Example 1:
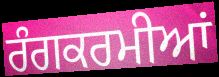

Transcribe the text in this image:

ਰੰਗਕਰਮੀਆਂ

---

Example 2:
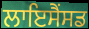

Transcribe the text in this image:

ਲਾਇਸੈਂਸਡ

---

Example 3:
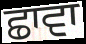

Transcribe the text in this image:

ਛਾਵਾ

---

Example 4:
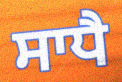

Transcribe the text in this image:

ਸਾਧੈ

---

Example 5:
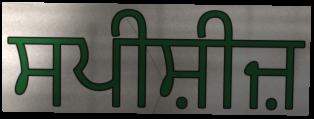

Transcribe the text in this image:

ਸਪੀਸ਼ੀਜ਼